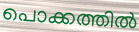
പൊക്കത്തിൽ